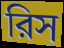
রিস